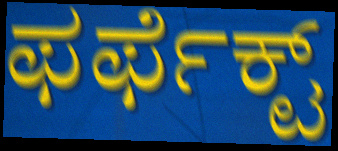
ಫರ್ಫೆಕ್ಟ್